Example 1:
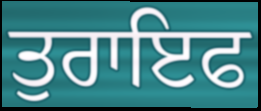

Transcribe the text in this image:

ਤੁਰਾਇਫ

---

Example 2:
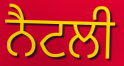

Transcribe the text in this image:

ਨੈਟਲੀ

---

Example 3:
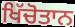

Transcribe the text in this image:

ਖਿੱਚੋਤਾਨ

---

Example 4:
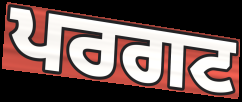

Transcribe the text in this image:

ਪਰਗਟ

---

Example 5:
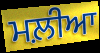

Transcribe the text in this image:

ਮਲ਼ੀਆ